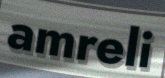
amreli